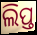
ଲିପ୍ତ